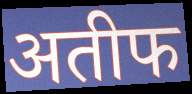
अतीफ